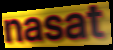
nasat